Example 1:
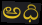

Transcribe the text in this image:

అధి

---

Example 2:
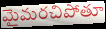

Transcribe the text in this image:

మైమరచిపోతూ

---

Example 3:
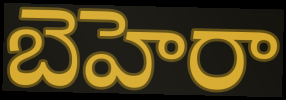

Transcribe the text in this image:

బెహెరా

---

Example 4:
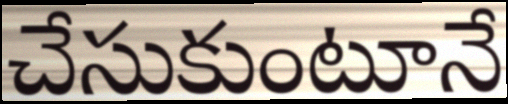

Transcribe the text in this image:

చేసుకుంటూనే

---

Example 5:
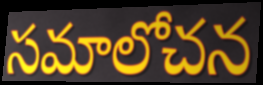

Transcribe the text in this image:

సమాలోచన